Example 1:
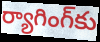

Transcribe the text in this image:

ర్యాగింగ్‌కు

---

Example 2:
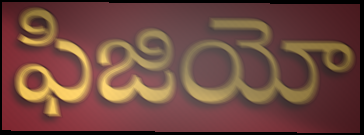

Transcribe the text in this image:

ఫిజియో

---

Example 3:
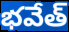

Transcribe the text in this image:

భవేత్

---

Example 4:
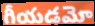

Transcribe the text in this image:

గీయడమో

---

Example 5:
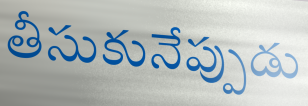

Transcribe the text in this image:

తీసుకునేప్పుడు